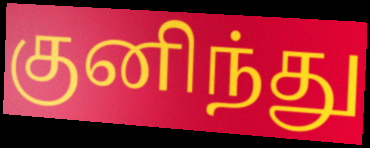
குனிந்து